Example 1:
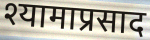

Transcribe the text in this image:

श्यामाप्रसाद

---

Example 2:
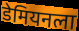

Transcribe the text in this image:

डेमियनला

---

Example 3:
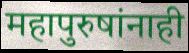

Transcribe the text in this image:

महापुरुषांनाही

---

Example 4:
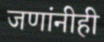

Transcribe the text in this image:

जणांनीही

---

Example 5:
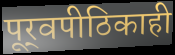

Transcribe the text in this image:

पूर्वपीठिकाही